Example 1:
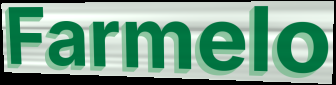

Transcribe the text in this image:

Farmelo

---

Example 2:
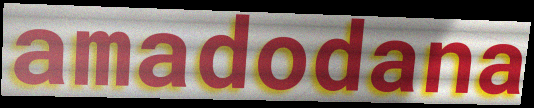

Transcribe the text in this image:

amadodana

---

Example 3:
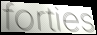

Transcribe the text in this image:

forties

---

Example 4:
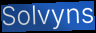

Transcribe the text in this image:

Solvyns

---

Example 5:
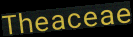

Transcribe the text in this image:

Theaceae